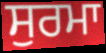
ਸੁਰਮਾ